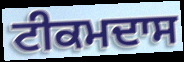
ਟੀਕਮਦਾਸ